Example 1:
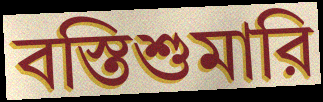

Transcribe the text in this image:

বস্তিশুমারি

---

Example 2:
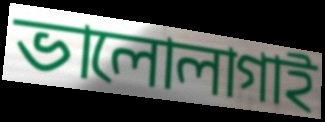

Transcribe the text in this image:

ভালোলাগাই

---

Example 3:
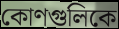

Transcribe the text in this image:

কোণগুলিকে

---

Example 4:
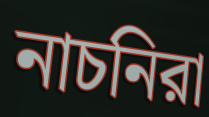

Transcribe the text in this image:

নাচনিরা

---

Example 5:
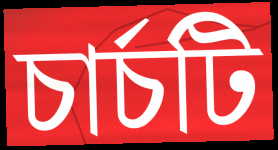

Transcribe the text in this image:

চার্চটি